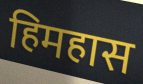
हिमहास